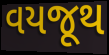
વયજૂથ